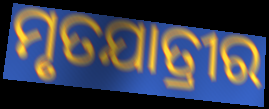
ମୃତଯାତ୍ରୀର